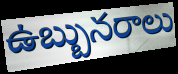
ఉబ్బునరాలు